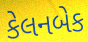
કેલનબેક